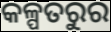
କଳ୍ପତରୁର